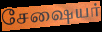
சேஷையர்